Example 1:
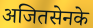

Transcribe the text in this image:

अजितसेनके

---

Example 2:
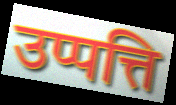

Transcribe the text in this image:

उप्पत्ति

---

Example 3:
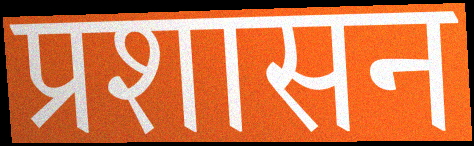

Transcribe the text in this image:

प्रशासन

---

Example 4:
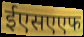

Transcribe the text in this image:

ईएसएएफ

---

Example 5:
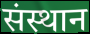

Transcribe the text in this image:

संस्थान